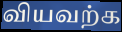
வியவற்க